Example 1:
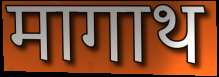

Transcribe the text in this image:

मागाथ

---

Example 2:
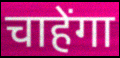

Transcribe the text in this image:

चाहेंगा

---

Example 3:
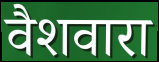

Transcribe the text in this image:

वैशवारा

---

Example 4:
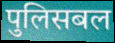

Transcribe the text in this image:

पुलिसबल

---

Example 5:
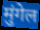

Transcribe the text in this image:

मुंगेल